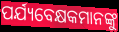
ପର୍ଯ୍ୟବେକ୍ଷକମାନଙ୍କୁ